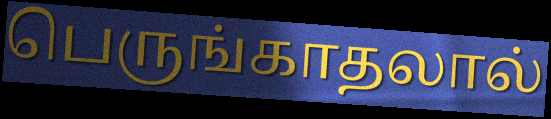
பெருங்காதலால்